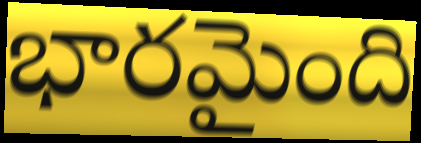
భారమైంది